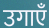
उगाएँ